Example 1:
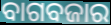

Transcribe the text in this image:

ବାଗବଜାର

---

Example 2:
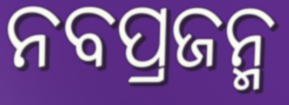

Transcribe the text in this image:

ନବପ୍ରଜନ୍ମ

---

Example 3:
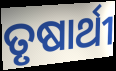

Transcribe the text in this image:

ତୃଷାର୍ଥୀ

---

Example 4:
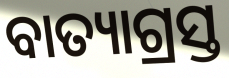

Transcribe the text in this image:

ବାତ୍ୟାଗ୍ରସ୍ତ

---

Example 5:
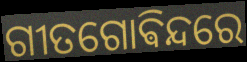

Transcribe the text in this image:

ଗୀତଗୋଵିନ୍ଦରେ